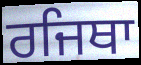
ਰਜਿਥਾ